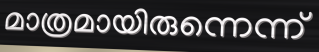
മാത്രമായിരുന്നെന്ന്